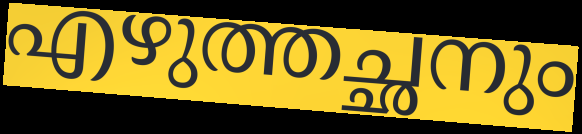
എഴുത്തച്ഛനും